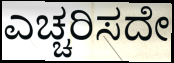
ಎಚ್ಚರಿಸದೇ